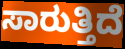
ಸಾರುತ್ತಿದೆ